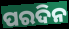
ପରଦିନ